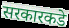
सरकारकडे